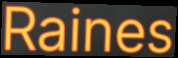
Raines